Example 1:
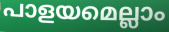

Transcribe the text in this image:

പാളയമെല്ലാം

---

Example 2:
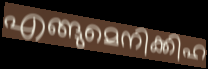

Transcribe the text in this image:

എങ്ങുമെനിക്കിഹ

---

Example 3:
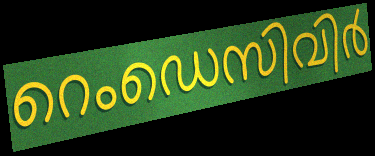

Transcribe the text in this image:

റെംഡെസിവിർ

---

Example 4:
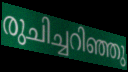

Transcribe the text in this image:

രുചിച്ചറിഞ്ഞു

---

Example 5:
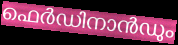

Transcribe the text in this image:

ഫെർഡിനാൻഡും